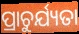
ପ୍ରାଚୁର୍ଯ୍ୟତା